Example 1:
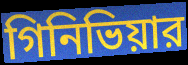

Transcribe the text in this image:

গিনিভিয়ার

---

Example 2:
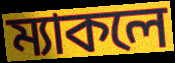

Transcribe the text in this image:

ম্যাকলে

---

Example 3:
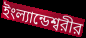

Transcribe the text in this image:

ইংল্যান্ডেশ্বরীর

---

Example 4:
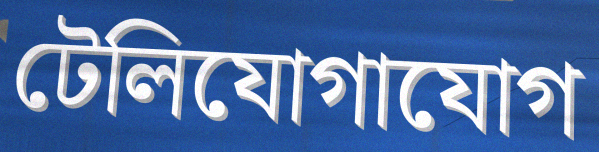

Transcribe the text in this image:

টেলিযোগাযোগ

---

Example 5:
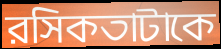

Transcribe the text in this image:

রসিকতাটাকে